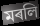
মৰলি